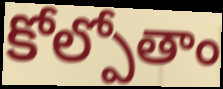
కోల్పోతాం